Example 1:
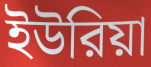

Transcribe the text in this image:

ইউরিয়া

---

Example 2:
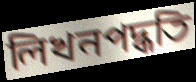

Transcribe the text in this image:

লিখনপদ্ধতি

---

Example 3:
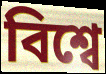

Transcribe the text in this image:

বিশ্বে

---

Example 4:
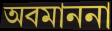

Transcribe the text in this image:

অবমাননা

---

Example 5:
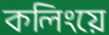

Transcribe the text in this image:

কলিংয়ে